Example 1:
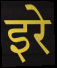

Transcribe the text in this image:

इरे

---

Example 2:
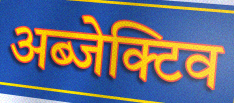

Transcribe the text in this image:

अब्जेक्टिव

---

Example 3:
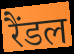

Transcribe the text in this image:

रैंडल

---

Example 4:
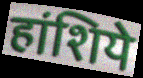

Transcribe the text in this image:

हांशिये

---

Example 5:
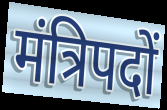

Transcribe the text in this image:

मंत्रिपदों